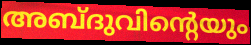
അബ്ദുവിന്റെയും